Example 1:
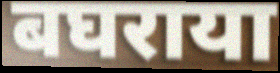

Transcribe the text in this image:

बघराया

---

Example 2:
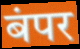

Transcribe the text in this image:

बंपर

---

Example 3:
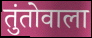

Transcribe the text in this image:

तुंतोवाला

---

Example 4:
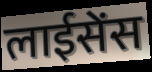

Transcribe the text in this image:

लाईसेंस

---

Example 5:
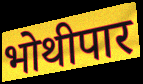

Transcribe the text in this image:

भोथीपार